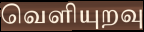
வெளியுறவு